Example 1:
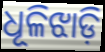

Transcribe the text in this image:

ଧୂଳିଝାଡ଼ି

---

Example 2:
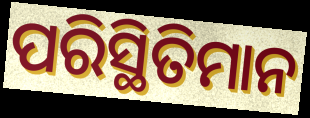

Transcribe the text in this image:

ପରିସ୍ଥିତିମାନ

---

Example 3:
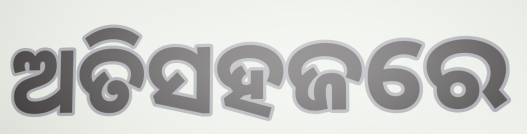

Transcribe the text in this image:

ଅତିସହଜରେ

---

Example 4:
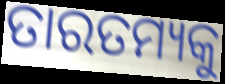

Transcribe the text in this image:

ତାରତମ୍ୟକୁ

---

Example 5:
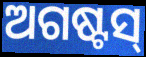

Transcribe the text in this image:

ଅଗଷ୍ଟସ୍